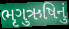
ભૃગુઋષિનું